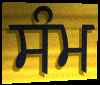
ਸੰਮ